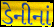
ડેનીનાં